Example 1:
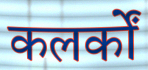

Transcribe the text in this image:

कलर्कों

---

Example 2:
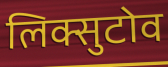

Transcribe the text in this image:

लिक्सुटोव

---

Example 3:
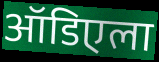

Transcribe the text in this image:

ऑडिएला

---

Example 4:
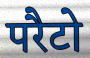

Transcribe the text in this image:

परैटो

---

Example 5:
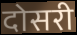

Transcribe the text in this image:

दोसरी